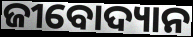
ଜୀବୋଦ୍ୟାନ